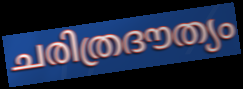
ചരിത്രദൗത്യം